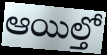
ఆయిల్తో